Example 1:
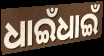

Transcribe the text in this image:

ଧାଇଁଧାଇଁ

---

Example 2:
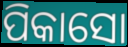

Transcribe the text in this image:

ପିକାସୋ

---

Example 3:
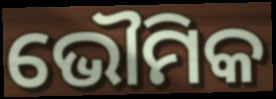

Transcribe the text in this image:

ଭୌମିକ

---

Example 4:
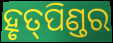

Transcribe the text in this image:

ହୃତ୍‌ପିଣ୍ଡର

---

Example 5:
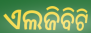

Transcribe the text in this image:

ଏଲଜିବିଟି